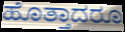
ಹೊತ್ತಾದರೂ